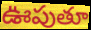
ఊపుతూ